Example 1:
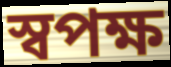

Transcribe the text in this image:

স্বপক্ষ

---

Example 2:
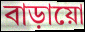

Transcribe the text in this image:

বাড়ায়ো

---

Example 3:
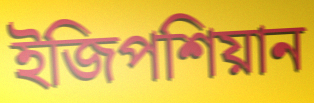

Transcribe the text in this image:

ইজিপশিয়ান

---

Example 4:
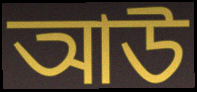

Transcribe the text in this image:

আউ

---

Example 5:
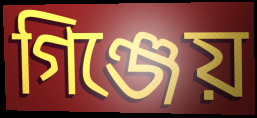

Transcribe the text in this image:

গিঞ্জেয়